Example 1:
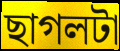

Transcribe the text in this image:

ছাগলটা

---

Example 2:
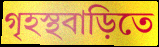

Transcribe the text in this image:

গৃহস্থবাড়িতে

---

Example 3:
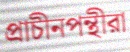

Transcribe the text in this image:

প্রাচীনপন্থীরা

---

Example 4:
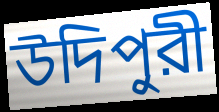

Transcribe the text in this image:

উদিপুরী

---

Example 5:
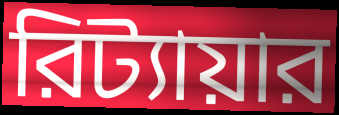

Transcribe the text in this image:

রিট্যায়ার